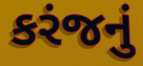
કરંજનું